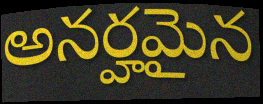
అనర్హమైన